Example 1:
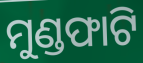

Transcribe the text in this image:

ମୁଣ୍ଡଫାଟି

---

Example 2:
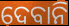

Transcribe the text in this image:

ଦେବାନି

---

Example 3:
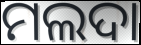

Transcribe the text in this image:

ମଲଦା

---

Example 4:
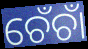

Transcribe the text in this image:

ଚେଁଚାଁ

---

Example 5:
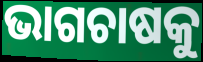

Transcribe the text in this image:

ଭାଗଚାଷକୁ